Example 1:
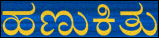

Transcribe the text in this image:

ಹಣುಕಿತು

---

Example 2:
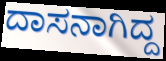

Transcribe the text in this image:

ದಾಸನಾಗಿದ್ದ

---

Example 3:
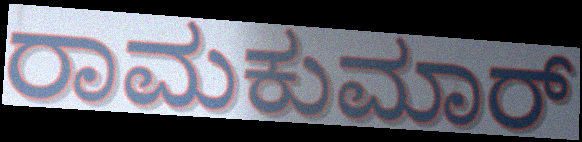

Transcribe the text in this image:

ರಾಮಕುಮಾರ್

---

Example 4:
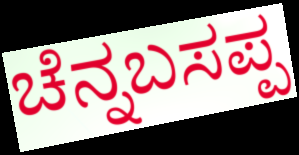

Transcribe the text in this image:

ಚೆನ್ನಬಸಪ್ಪ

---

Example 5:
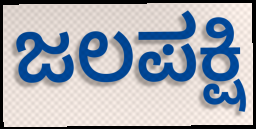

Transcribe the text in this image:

ಜಲಪಕ್ಷಿ